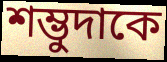
শম্ভুদাকে